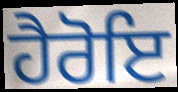
ਹੈਰੋਇ